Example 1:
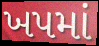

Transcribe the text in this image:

ખપમાં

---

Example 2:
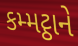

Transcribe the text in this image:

કમ્મટ્ઠાને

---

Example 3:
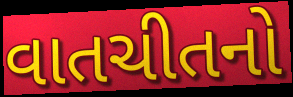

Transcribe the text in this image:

વાતચીતનો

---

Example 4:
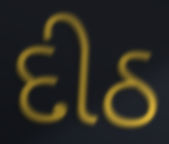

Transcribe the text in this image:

દીઠ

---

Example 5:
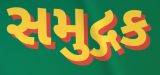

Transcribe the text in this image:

સમુદ્ગક